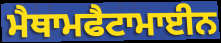
ਮੈਥਾਮਫੈਟਾਮਾਈਨ